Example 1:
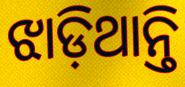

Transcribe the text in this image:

ଝାଡ଼ିଥାନ୍ତି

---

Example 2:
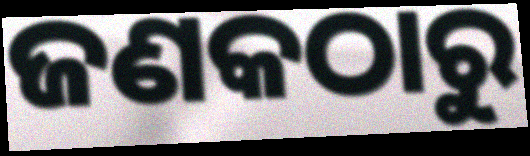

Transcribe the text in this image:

ଜଣକଠାରୁ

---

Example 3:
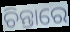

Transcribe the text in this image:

ଚିନ୍ତାରେ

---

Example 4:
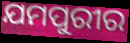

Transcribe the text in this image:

ଯମପୁରୀର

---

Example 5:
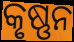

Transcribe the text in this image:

କୃଷ୍ଣନ